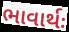
ભાવાર્થઃ